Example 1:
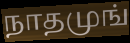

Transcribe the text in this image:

நாதமுங்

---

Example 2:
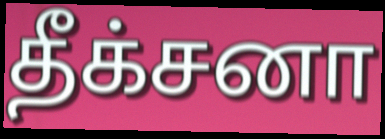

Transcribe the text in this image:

தீக்சனா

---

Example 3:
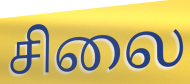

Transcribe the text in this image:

சிலை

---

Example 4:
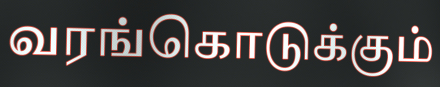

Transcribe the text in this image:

வரங்கொடுக்கும்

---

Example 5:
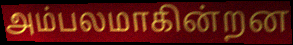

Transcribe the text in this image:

அம்பலமாகின்றன